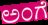
ಅಂಗೆ